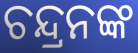
ଚନ୍ଦ୍ରନଙ୍କ